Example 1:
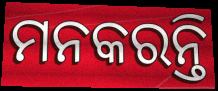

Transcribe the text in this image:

ମନକରନ୍ତି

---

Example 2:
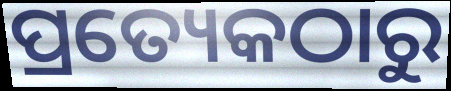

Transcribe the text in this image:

ପ୍ରତ୍ୟେକଠାରୁ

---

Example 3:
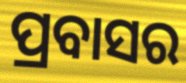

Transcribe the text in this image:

ପ୍ରବାସର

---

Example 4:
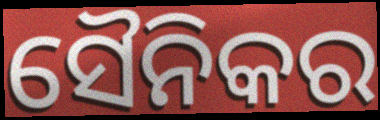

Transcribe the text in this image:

ସୈନିକର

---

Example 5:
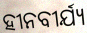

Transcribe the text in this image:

ହୀନବୀର୍ଯ୍ୟ